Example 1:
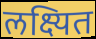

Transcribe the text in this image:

लक्ष्यित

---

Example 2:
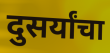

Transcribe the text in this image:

दुसर्यांचा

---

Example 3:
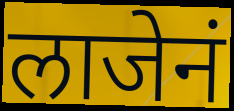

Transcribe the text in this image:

लाजेनं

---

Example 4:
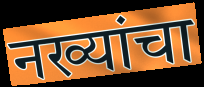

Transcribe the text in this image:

नख्यांचा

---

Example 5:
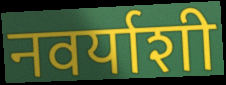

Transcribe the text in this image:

नवर्याशी